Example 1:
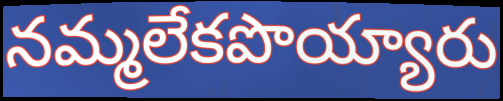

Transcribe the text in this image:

నమ్మలేకపొయ్యారు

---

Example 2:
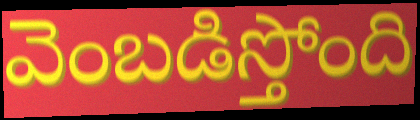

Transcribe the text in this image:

వెంబడిస్తోంది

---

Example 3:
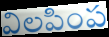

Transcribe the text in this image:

విలపింప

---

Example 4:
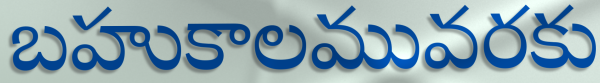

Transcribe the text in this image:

బహుకాలమువరకు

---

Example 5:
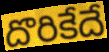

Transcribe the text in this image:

దొరికేదే